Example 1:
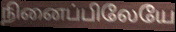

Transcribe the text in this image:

நினைப்பிலேயே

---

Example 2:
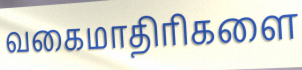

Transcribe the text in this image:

வகைமாதிரிகளை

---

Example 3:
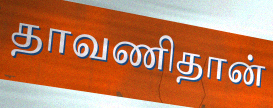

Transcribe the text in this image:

தாவணிதான்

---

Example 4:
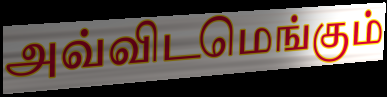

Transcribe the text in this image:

அவ்விடமெங்கும்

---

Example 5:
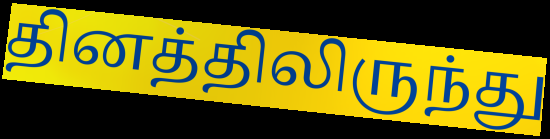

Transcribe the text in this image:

தினத்திலிருந்து